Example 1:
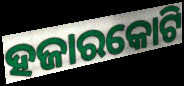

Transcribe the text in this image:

ହଜାରକୋଟି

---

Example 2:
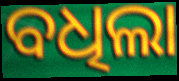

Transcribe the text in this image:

ବଧିଲା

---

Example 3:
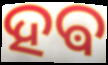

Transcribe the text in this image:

ହଵ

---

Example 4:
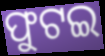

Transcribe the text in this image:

ଫୁଟଇ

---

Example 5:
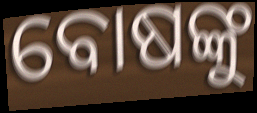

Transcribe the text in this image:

ବୋଷଙ୍କୁ